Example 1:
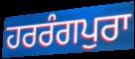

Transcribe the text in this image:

ਹਰਰੰਗਪੁਰਾ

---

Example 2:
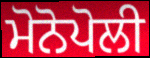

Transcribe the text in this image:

ਮੋਨੋਪੋਲੀ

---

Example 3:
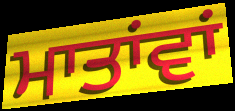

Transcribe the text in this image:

ਮਾਤਾਂਵਾਂ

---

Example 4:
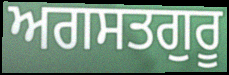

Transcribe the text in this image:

ਅਗਸਤਗੁਰੂ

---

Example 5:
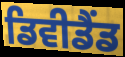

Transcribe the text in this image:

ਡਿਵੀਡੈਂਡ